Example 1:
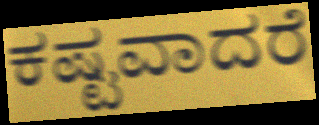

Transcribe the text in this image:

ಕಷ್ಟವಾದರೆ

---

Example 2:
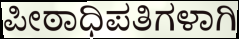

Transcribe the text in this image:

ಪೀಠಾಧಿಪತಿಗಳಾಗಿ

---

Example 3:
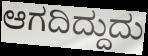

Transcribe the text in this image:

ಆಗದಿದ್ದುದು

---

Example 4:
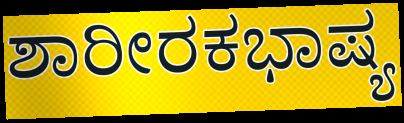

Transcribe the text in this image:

ಶಾರೀರಕಭಾಷ್ಯ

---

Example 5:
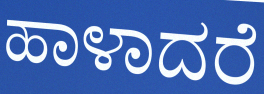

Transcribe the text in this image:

ಹಾಳಾದರೆ